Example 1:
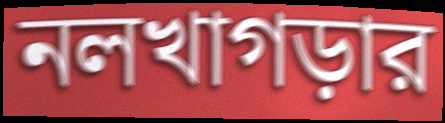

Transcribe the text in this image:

নলখাগড়ার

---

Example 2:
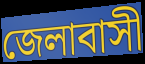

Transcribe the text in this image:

জেলাবাসী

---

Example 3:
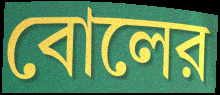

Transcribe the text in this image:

বোলের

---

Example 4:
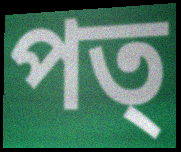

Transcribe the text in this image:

পত্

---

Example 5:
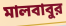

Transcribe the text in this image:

মালবাবুর